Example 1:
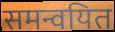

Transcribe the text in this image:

समन्वयित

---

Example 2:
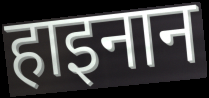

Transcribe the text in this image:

हाइनान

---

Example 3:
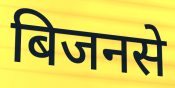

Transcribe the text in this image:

बिजनसे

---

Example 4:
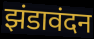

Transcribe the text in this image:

झंडावंदन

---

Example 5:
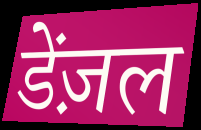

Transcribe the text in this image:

डेंज़ल